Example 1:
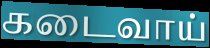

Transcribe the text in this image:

கடைவாய்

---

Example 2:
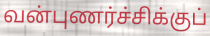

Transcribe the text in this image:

வன்புணர்ச்சிக்குப்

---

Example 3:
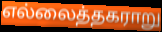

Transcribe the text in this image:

எல்லைத்தகராறு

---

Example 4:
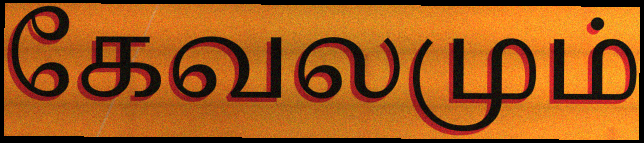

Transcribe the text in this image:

கேவலமும்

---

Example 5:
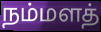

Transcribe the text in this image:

நம்மளத்